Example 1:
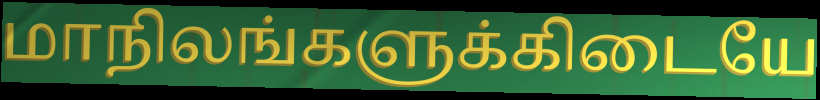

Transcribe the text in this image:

மாநிலங்களுக்கிடையே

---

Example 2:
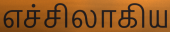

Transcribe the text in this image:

எச்சிலாகிய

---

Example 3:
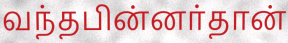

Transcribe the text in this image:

வந்தபின்னர்தான்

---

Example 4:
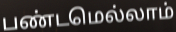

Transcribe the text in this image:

பண்டமெல்லாம்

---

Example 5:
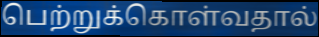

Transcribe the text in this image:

பெற்றுக்கொள்வதால்